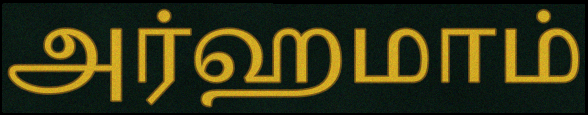
அர்ஹமாம்